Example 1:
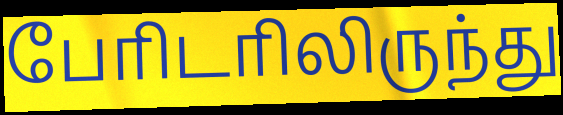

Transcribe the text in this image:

பேரிடரிலிருந்து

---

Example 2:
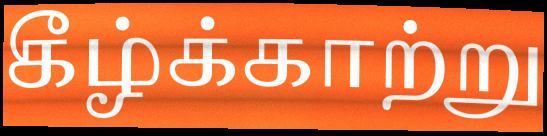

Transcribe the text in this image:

கீழ்க்காற்று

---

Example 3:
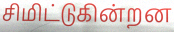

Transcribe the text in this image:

சிமிட்டுகின்றன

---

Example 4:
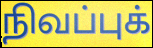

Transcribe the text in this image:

நிவப்புக்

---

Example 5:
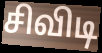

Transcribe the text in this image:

சிவிடி